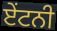
ਏਂਟਨੀ